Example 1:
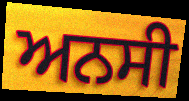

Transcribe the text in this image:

ਅਨਸੀ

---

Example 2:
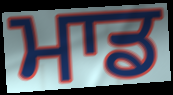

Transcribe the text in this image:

ਮਾਡ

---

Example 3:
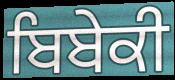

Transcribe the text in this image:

ਬਿਬੇਕੀ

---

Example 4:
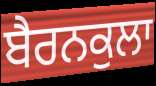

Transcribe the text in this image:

ਬੈਰਨਕੁਲਾ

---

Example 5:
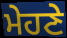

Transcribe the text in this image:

ਮੇਹਣੇ